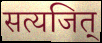
सत्यजित्